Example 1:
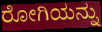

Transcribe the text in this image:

ರೋಗಿಯನ್ನು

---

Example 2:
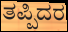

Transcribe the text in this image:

ತಪ್ಪಿದರ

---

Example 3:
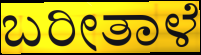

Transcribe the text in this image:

ಬರೀತಾಳೆ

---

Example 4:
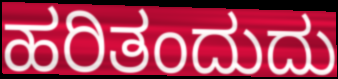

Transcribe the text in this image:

ಹರಿತಂದುದು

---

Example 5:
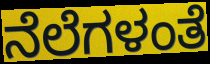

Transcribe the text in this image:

ನೆಲೆಗಳಂತೆ